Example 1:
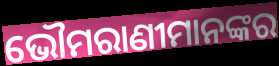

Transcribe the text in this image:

ଭୌମରାଣୀମାନଙ୍କର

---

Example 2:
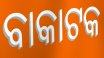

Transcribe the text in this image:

ବାକାଟକ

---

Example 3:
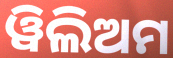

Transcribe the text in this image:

ୱିଲିଅମ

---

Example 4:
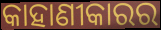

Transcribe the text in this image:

କାହାଣୀକାରର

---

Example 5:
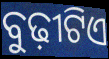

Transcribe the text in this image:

ବୁଢ଼ୀଟିଏ